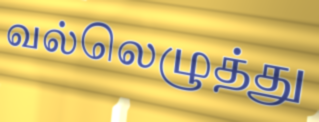
வல்லெழுத்து